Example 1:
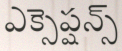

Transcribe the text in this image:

ఎక్సెప్షన్స్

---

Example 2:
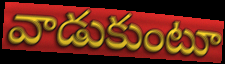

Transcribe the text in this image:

వాడుకుంటూ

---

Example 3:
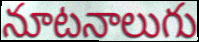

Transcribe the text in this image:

నూటనాలుగు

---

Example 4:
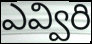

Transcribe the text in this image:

ఎవ్విరి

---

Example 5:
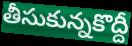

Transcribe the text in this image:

తీసుకున్నకొద్దీ